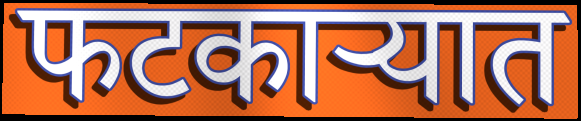
फटकाऱ्यात